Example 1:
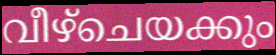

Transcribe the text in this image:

വീഴ്ചെയക്കും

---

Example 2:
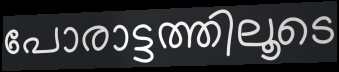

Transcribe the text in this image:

പോരാട്ടത്തിലൂടെ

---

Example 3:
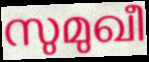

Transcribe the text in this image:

സുമുഖീ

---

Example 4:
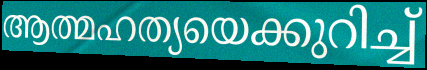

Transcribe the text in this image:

ആത്മഹത്യയെക്കുറിച്ച്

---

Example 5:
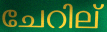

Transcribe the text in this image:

ചേറില്